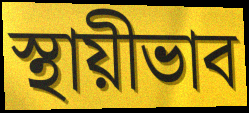
স্থায়ীভাব